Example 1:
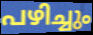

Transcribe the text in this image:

പഴിച്ചും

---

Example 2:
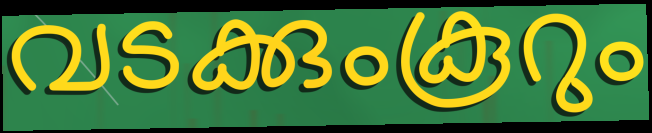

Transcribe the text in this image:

വടക്കുംകൂറും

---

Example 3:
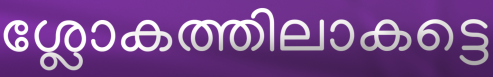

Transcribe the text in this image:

ശ്ലോകത്തിലാകട്ടെ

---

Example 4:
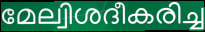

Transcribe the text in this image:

മേല്വിശദീകരിച്ച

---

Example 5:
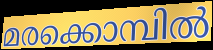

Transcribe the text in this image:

മരക്കൊമ്പിൽ